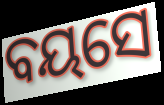
ବୟସେ